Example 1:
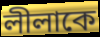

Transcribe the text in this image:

লীলাকে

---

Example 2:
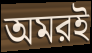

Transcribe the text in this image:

অমরই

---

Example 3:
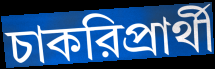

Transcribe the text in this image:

চাকরিপ্রার্থী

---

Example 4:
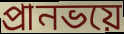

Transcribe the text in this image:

প্রানভয়ে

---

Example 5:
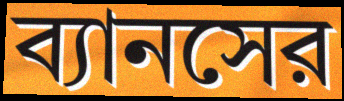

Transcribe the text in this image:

ব্যানসের